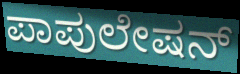
ಪಾಪುಲೇಷನ್